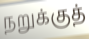
நறுக்குத்